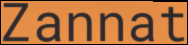
Zannat